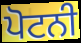
ਪੋਟਨੀ